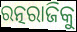
ରତ୍ନରାଜିକୁ